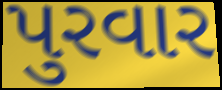
પુરવાર